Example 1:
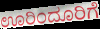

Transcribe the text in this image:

ಊರಿಂದೂರಿಗೆ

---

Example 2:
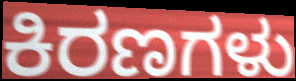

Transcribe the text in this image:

ಕಿರಣಗಳು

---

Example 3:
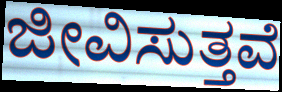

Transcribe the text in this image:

ಜೀವಿಸುತ್ತವೆ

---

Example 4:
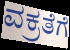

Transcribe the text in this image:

ವಕ್ರತೆಗೆ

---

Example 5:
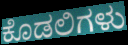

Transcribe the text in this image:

ಕೊಡಲಿಗಳು